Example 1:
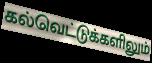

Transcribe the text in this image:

கல்வெட்டுக்களிலும்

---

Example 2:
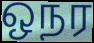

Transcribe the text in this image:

ஒநர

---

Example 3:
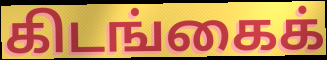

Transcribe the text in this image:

கிடங்கைக்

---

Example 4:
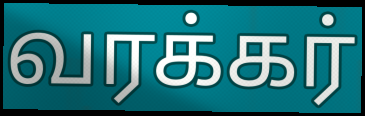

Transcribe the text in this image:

வரக்கர்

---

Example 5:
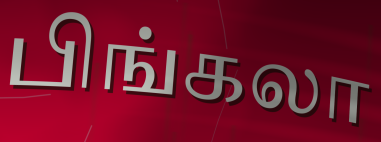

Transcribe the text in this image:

பிங்கலா